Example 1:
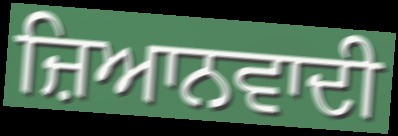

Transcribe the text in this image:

ਜ਼ਿਆਨਵਾਦੀ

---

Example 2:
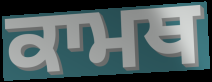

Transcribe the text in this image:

ਕਾਮਥ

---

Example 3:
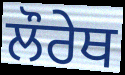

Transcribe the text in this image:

ਲੌਰੇਥ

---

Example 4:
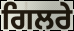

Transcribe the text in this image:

ਗਿਲਰੇ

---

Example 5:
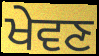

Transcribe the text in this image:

ਖੇਵਣ